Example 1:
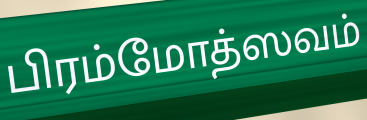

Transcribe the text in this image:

பிரம்மோத்ஸவம்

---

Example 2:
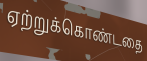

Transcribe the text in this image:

ஏற்றுக்கொண்டதை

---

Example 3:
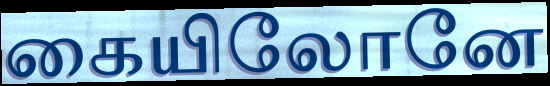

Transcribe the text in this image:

கையிலோனே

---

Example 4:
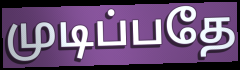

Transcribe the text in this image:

முடிப்பதே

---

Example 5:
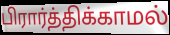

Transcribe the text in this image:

பிரார்த்திக்காமல்